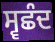
ਸ੍ਵਛੰਦ